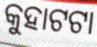
କୁହାଟଟା